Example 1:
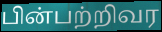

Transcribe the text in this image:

பின்பற்றிவர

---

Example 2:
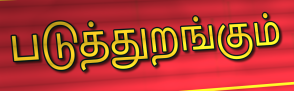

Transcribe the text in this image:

படுத்துறங்கும்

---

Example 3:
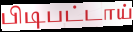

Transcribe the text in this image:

பிடிபட்டாய்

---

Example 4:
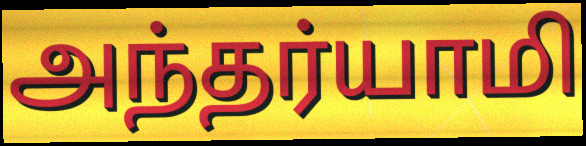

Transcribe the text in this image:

அந்தர்யாமி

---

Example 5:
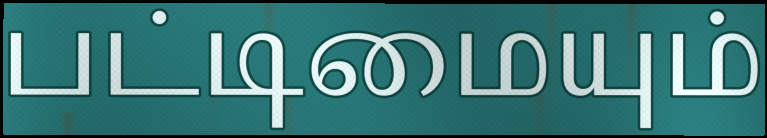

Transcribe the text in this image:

பட்டிமையும்